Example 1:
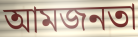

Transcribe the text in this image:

আমজনতা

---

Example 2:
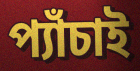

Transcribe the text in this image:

প্যাঁচাই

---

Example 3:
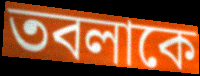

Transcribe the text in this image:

তবলাকে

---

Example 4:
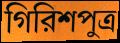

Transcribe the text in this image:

গিরিশপুত্র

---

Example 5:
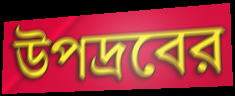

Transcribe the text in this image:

উপদ্রবের